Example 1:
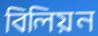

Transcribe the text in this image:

বিলিয়ন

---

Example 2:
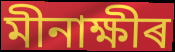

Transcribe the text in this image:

মীনাক্ষীৰ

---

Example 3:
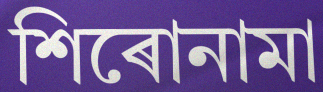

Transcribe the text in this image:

শিৰোনামা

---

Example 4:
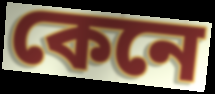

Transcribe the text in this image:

কেনে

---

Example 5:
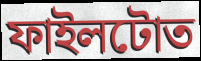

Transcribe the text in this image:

ফাইলটোত